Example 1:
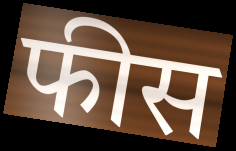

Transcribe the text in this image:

फीस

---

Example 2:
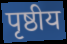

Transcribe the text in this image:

पृष्ठीय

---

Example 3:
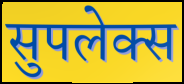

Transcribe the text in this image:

सुपलेक्स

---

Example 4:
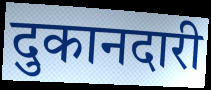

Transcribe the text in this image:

दुकानदारी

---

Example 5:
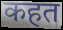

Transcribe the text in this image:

कहत